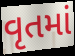
વૃતમાં